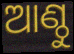
ଆଣ୍ଠୁ